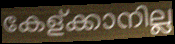
കേള്ക്കാനില്ല